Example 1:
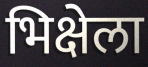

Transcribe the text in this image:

भिक्षेला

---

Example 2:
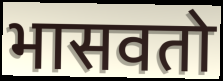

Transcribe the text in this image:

भासवतो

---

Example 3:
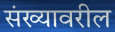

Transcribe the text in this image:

संख्यावरील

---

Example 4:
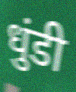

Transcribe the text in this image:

धुंडी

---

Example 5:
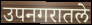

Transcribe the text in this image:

उपनगरातले